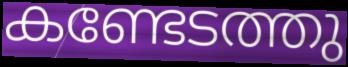
കണ്ടേടത്തു